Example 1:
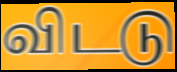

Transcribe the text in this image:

விடடு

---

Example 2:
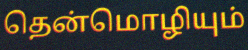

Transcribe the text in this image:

தென்மொழியும்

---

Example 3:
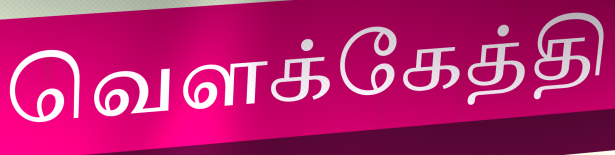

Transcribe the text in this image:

வெளக்கேத்தி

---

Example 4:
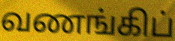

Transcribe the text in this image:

வணங்கிப்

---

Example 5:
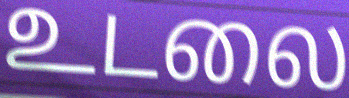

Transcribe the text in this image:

உடலை